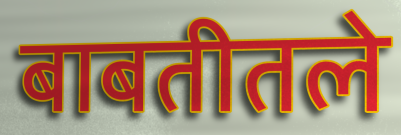
बाबतीतले